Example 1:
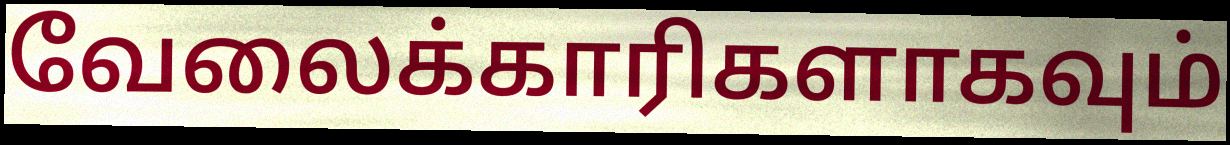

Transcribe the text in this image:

வேலைக்காரிகளாகவும்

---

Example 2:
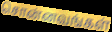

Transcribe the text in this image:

சொன்னவங்கள்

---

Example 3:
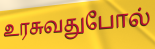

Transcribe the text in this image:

உரசுவதுபோல்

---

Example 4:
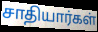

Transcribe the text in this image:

சாதியார்கள்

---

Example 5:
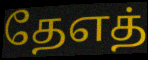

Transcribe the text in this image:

தேஎத்